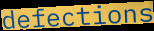
defections